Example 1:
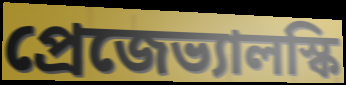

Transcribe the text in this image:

প্রেজেভ্যালস্কি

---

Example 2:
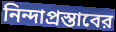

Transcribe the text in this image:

নিন্দাপ্রস্তাবের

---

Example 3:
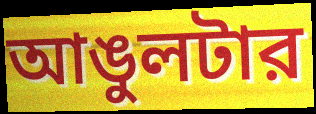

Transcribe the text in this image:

আঙুলটার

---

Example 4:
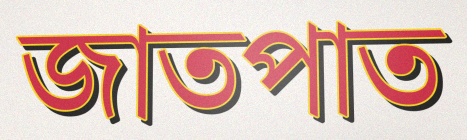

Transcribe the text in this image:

জাতপাত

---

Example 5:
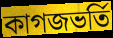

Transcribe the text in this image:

কাগজভর্তি